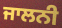
ਜਾਲਨੀ